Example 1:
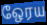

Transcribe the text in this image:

ஒேரய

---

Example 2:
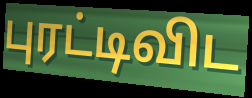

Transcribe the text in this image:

புரட்டிவிட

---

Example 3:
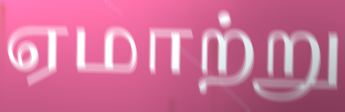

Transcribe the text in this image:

ஏமாற்று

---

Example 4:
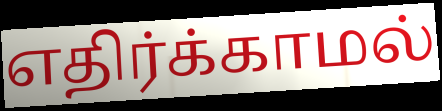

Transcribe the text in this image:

எதிர்க்காமல்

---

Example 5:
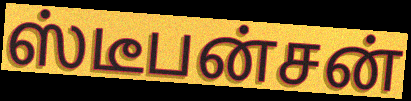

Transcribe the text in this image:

ஸ்டீபன்சன்